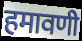
हमावणी